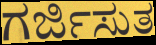
ಗರ್ಜಿಸುತ